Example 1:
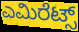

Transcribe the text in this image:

ಎಮಿರೆಟ್ಸ್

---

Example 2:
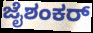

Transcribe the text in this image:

ಜೈಶಂಕರ್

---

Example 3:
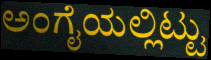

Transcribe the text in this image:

ಅಂಗೈಯಲ್ಲಿಟ್ಟು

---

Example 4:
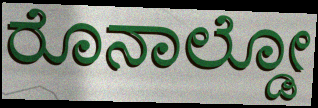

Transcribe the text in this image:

ರೊನಾಲ್ಡೋ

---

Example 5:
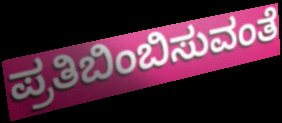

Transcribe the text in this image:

ಪ್ರತಿಬಿಂಬಿಸುವಂತೆ